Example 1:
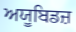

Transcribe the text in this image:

ਅਯੂਬਿਡਜ਼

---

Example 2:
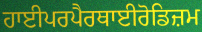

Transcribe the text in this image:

ਹਾਈਪਰਪੈਰਥਾਈਰੋਡਿਜ਼ਮ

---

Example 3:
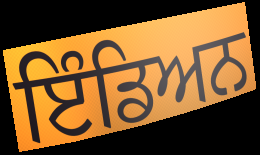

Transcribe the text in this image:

ਇੰਡਿਅਨ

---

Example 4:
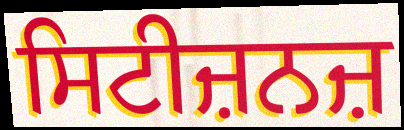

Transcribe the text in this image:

ਸਿਟੀਜ਼ਨਜ਼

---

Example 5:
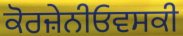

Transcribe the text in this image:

ਕੋਰਜ਼ੇਨੀਓਵਸਕੀ